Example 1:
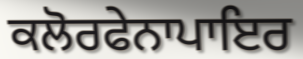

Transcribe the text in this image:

ਕਲੋਰਫੇਨਾਪਾਇਰ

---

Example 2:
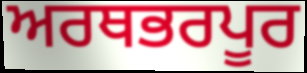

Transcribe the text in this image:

ਅਰਥਭਰਪੂਰ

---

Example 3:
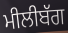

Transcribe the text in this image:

ਮੀਲੀਬੱਗ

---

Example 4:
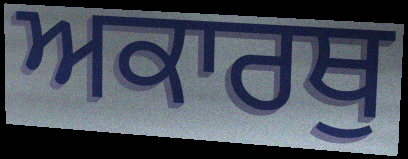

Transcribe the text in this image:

ਅਕਾਰਥੁ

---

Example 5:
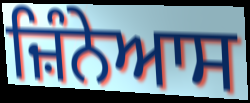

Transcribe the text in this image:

ਜ਼ਿੰਨੇਆਸ